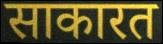
साकारत